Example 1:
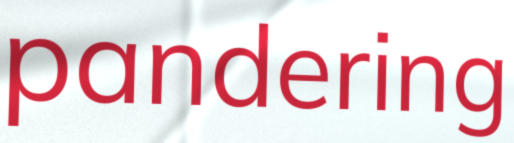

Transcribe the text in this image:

pandering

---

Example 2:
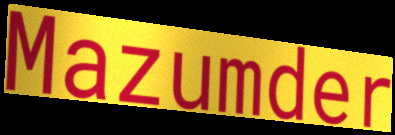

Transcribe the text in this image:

Mazumder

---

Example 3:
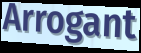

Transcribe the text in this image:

Arrogant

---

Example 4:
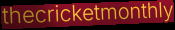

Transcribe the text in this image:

thecricketmonthly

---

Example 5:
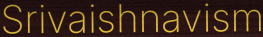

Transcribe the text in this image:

Srivaishnavism